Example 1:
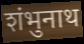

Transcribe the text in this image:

शंभुनाथ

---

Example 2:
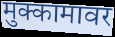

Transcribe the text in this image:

मुक्कामावर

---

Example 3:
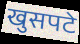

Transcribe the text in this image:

खुसपटे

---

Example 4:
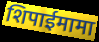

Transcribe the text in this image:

शिपाईमामा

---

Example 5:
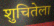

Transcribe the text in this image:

शुचितेला